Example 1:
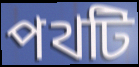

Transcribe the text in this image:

পথটি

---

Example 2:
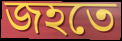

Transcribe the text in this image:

জহতে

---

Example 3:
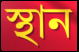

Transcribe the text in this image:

স্থান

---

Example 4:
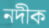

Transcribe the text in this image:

নদীক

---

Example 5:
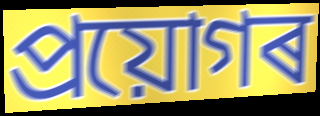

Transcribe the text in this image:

প্ৰয়োগৰ